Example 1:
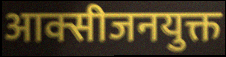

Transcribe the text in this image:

आक्सीजनयुक्त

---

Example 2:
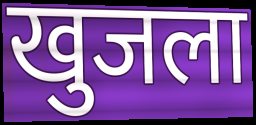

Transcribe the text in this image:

खुजला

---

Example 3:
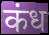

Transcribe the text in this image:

कंध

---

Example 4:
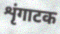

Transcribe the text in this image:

शृंगाटक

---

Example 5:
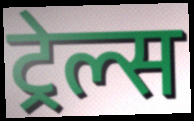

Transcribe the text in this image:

ट्रेल्स